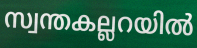
സ്വന്തകല്ലറയിൽ